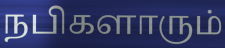
நபிகளாரும்